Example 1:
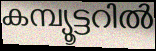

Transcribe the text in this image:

കമ്പ്യൂട്ടറിൽ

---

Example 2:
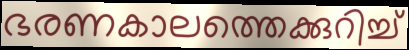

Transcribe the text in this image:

ഭരണകാലത്തെക്കുറിച്ച്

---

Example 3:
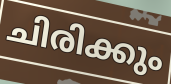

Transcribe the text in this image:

ചിരിക്കും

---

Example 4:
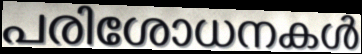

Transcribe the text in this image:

പരിശോധനകൾ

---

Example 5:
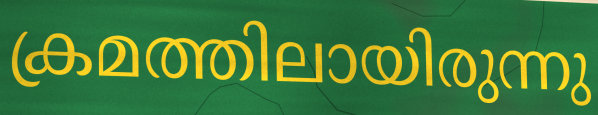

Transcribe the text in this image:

ക്രമത്തിലായിരുന്നു